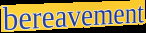
bereavement